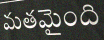
మతమైంది